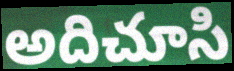
అదిచూసి